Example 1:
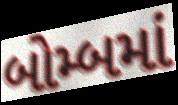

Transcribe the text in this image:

બોમ્બમાં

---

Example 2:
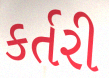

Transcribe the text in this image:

કર્તરી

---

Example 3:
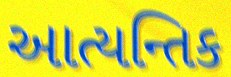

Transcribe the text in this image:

આત્યન્તિક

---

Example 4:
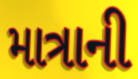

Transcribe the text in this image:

માત્રાની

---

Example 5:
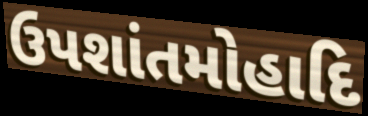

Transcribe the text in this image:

ઉપશાંતમોહાદિ